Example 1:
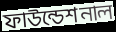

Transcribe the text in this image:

ফাউন্ডেশনাল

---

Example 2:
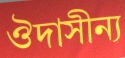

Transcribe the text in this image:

ঔদাসীন্য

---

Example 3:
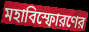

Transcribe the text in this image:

মহাবিস্ফোরণের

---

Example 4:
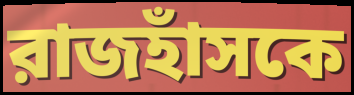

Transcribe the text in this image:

রাজহাঁসকে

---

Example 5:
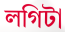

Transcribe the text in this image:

লগিটা